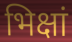
भिक्षां